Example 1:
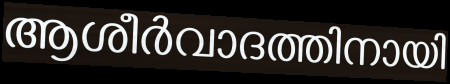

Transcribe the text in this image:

ആശീർവാദത്തിനായി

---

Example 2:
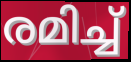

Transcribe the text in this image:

രമിച്ച്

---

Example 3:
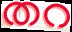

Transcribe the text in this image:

തറ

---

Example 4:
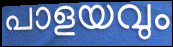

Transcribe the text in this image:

പാളയവും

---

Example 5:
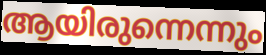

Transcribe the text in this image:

ആയിരുന്നെന്നും